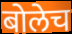
बोलेच